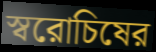
স্বরোচিষের